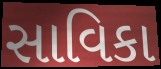
સાવિકા